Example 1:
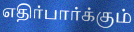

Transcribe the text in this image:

எதிர்பார்க்கும்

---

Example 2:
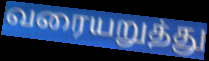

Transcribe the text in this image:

வரையறுத்து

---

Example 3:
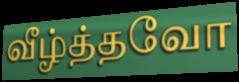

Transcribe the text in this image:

வீழ்த்தவோ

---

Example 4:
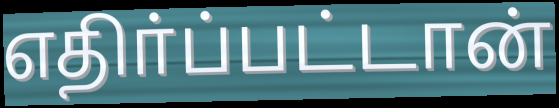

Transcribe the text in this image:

எதிர்ப்பட்டான்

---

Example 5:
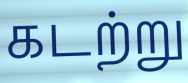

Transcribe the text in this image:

கடற்று